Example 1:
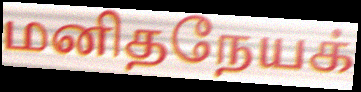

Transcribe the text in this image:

மனிதநேயக்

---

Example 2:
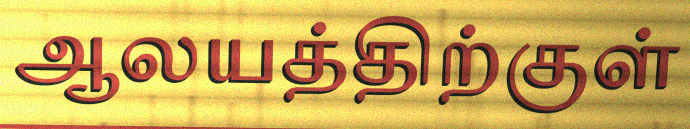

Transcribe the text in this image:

ஆலயத்திற்குள்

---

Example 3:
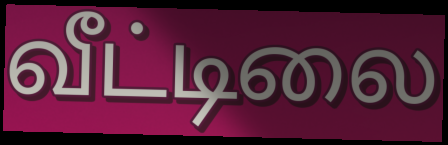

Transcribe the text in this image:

வீட்டிலை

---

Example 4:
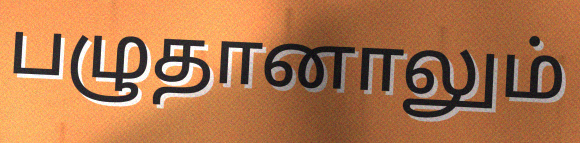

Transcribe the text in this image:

பழுதானாலும்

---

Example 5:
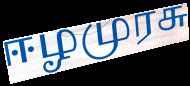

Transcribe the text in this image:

ஈழமுரசு